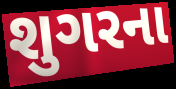
શુગરના